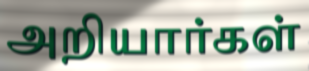
அறியார்கள்